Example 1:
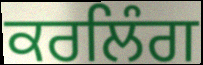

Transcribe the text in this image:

ਕਰਲਿੰਗ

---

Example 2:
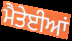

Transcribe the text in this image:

ਮੈਤੇਈਆਂ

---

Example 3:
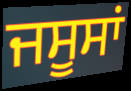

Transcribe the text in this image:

ਜਸੂਸਾਂ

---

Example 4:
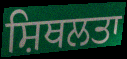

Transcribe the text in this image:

ਸ਼ਿਥਲਤਾ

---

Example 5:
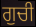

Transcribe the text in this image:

ਗੁਚੀ